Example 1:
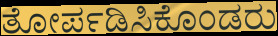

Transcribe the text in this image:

ತೋರ್ಪಡಿಸಿಕೊಂಡರು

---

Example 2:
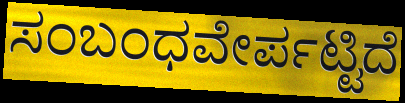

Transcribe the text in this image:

ಸಂಬಂಧವೇರ್ಪಟ್ಟಿದೆ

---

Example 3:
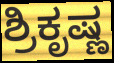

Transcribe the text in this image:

ಶ್ರಿಕೃಷ್ಣ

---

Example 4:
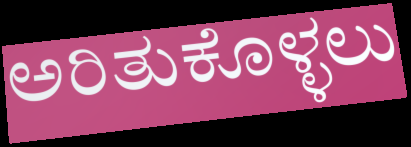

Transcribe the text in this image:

ಅರಿತುಕೊಳ್ಳಲು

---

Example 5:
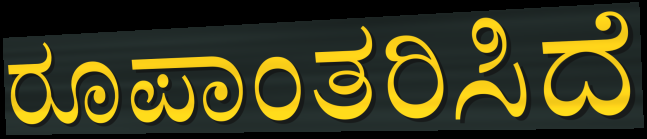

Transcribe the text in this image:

ರೂಪಾಂತರಿಸಿದೆ